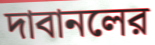
দাবানলের